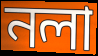
নলা